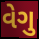
વેગુ